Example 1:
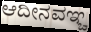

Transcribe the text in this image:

ಆದೀನವಞ್ಚ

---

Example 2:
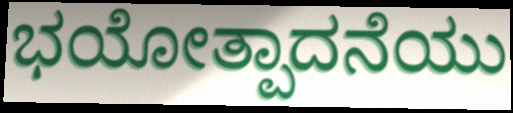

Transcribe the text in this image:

ಭಯೋತ್ಪಾದನೆಯು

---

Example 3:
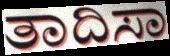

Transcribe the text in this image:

ತಾದಿಸಾ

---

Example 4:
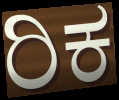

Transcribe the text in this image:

ರಿಕ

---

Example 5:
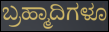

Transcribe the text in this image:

ಬ್ರಹ್ಮಾದಿಗಳೂ